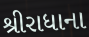
શ્રીરાધાના